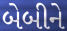
બેબીને